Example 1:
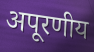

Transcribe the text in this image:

अपूरणीय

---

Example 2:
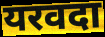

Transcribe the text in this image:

यरवदा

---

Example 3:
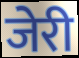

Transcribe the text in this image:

जेरी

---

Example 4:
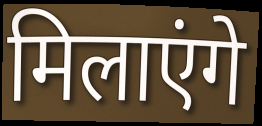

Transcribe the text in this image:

मिलाएंगे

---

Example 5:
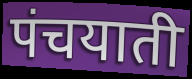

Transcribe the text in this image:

पंचयाती